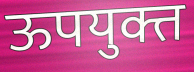
ऊपयुक्त